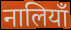
नालियाँ